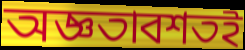
অজ্ঞতাবশতই